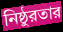
নিষ্ঠুরতার